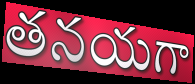
తనయగా